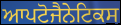
ਆਪਟੋਜੈਨੇਟਿਕਸ